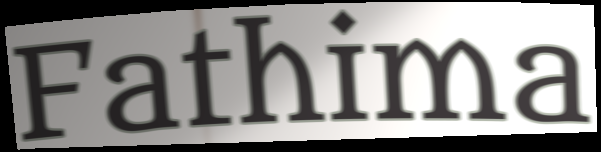
Fathima